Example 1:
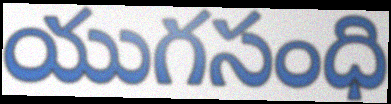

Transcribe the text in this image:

యుగసంధి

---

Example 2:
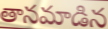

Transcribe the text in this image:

తానమాడిన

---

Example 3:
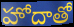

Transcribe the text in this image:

హోదాతో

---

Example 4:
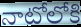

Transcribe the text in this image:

నాటోలోకి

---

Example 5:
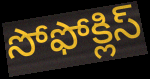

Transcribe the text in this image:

సోఫోక్లిస్